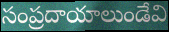
సంప్రదాయాలుండేవి